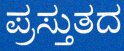
ಪ್ರಸ್ತುತದ